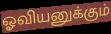
ஓவியனுக்கும்